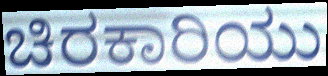
ಚಿರಕಾರಿಯು